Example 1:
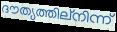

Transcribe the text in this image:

ദൗത്യത്തില്നിന്ന്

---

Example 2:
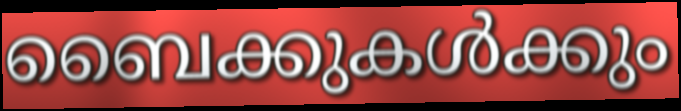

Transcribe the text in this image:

ബൈക്കുകൾക്കും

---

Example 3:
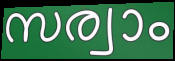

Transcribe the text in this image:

സര്വാം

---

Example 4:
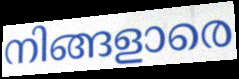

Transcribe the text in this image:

നിങ്ങളാരെ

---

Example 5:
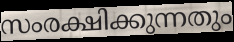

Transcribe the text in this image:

സംരക്ഷിക്കുന്നതും